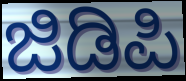
ಜಿಡಿಪಿ